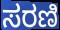
ಸರಣಿ